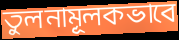
তুলনামূলকভাবে